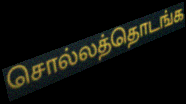
சொல்லத்தொடங்க